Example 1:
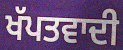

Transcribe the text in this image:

ਖੱਪਤਵਾਦੀ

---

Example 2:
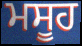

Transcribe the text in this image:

ਮਸੂਹ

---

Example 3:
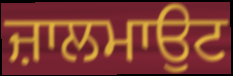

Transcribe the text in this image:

ਜ਼ਾਲਮਾਉਟ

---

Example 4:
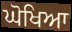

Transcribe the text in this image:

ਘੋਖਿਆ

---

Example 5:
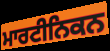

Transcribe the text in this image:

ਮਾਰਟੀਨਿਕਨ